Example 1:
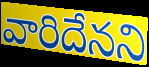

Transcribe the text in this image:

వారిదేనని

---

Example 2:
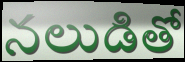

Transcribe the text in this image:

నలుడితో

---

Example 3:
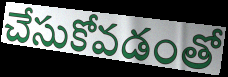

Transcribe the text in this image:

చేసుకోవడంతో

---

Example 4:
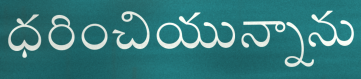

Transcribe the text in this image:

ధరించియున్నాను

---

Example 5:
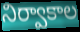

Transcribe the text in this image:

నిర్వాకాల